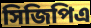
সিজিপিএ